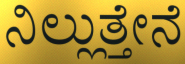
ನಿಲ್ಲುತ್ತೇನೆ